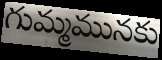
గుమ్మమునకు